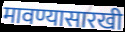
मावण्यासारखी